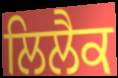
ਲਿਲੈਕ